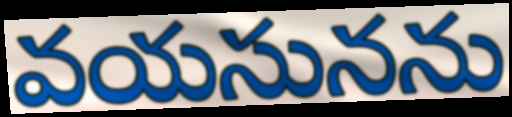
వయసునను